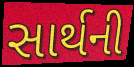
સાર્થની